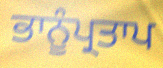
ਭਾਨੂੰਪ੍ਰਤਾਪ